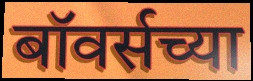
बॉवर्सच्या